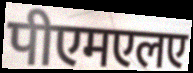
पीएमएलए